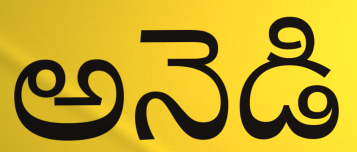
అనెడి